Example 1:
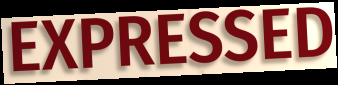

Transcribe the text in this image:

EXPRESSED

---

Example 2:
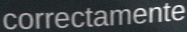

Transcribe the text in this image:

correctamente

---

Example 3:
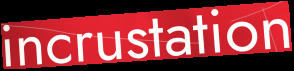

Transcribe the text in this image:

incrustation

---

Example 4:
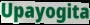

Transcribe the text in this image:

Upayogita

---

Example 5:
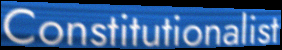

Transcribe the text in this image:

Constitutionalist